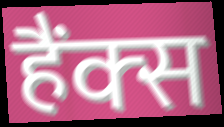
हैंक्‍स